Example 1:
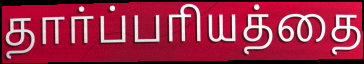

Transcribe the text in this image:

தார்ப்பரியத்தை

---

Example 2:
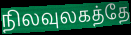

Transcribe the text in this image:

நிலவுலகத்தே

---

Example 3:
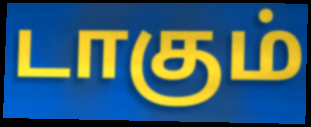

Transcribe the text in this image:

டாகும்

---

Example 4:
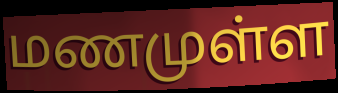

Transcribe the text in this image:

மணமுள்ள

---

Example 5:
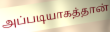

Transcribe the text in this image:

அப்படியாகத்தான்